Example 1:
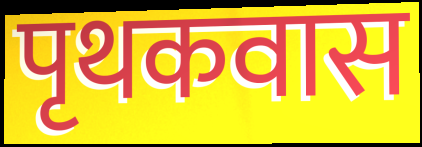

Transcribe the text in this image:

पृथकवास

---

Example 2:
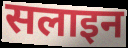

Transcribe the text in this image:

सलाइन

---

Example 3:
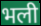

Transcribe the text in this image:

भली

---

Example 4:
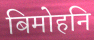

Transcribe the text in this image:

बिमोहनि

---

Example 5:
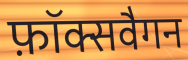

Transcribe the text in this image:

फ़ॉक्सवैगन